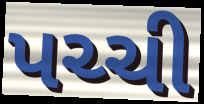
પચ્ચી